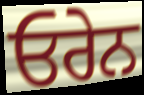
ਓਰੇਨ